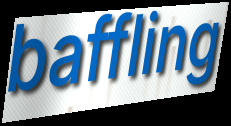
baffling